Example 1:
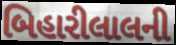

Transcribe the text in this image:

બિહારીલાલની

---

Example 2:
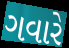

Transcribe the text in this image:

ગવારે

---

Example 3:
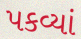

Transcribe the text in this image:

પકવ્યાં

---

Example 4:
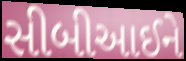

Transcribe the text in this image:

સીબીઆઈને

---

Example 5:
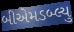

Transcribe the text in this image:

બીએમડબ્લ્યુ